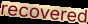
recovered